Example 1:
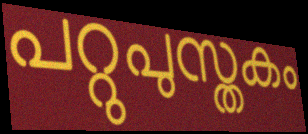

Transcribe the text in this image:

പറ്റുപുസ്തകം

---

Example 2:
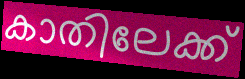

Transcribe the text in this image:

കാതിലേക്ക്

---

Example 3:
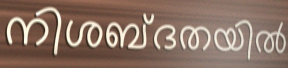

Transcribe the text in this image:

നിശബ്ദതയിൽ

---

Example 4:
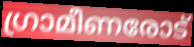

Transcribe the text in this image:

ഗ്രാമീണരോട്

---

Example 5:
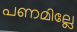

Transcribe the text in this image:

പണമില്ലേ